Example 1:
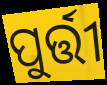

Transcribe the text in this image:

ପୁର୍ତ୍ତୀ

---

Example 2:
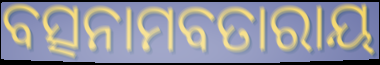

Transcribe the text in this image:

ବତ୍ସନାମବତାରାୟ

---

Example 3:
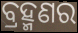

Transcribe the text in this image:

ବ୍ରହ୍ମଣର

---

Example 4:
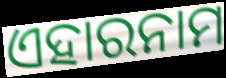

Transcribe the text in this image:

ଏହାରନାମ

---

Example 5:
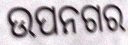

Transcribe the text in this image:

ଉପନଗର